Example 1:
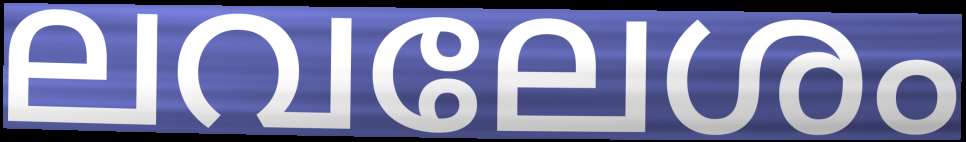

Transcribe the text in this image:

ലവലേശം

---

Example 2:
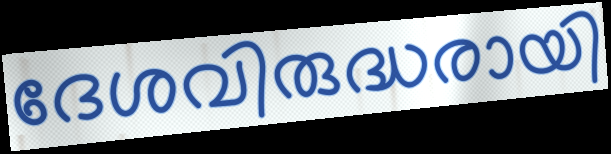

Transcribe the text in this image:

ദേശവിരുദ്ധരായി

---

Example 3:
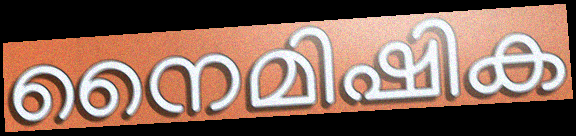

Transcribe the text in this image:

നൈമിഷിക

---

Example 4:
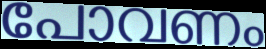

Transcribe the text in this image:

പോവണം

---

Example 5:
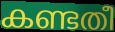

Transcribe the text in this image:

കണ്ടതീ